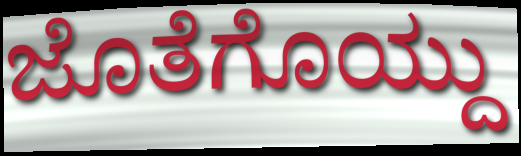
ಜೊತೆಗೊಯ್ದು